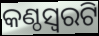
କଣ୍ଠସ୍ଵରଟି